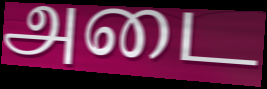
அடை